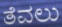
ತೆವಲು